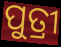
ପୁତ୍ରୀ